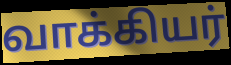
வாக்கியர்